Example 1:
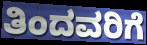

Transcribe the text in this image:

ತಿಂದವರಿಗೆ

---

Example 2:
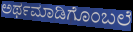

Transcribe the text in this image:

ಅರ್ಥಮಾಡಿಗೊಂಬಲೆ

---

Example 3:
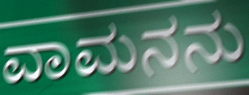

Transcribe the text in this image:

ವಾಮನನು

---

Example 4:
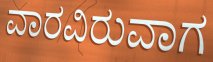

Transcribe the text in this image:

ವಾರವಿರುವಾಗ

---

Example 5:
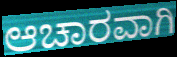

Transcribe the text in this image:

ಆಚಾರವಾಗಿ